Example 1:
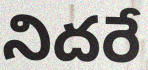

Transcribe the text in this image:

నిదరే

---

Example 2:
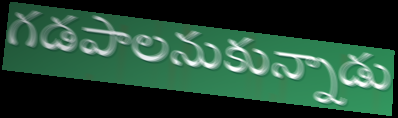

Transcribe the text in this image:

గడపాలనుకున్నాడు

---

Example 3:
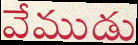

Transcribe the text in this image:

వేముడు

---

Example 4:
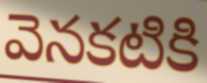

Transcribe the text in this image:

వెనకటికి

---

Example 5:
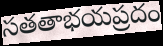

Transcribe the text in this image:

సతతాభయప్రదం